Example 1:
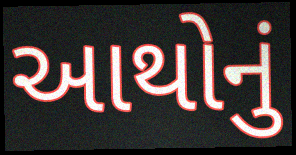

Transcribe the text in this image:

આથોનું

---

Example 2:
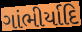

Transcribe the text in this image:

ગાંભીર્યાદિ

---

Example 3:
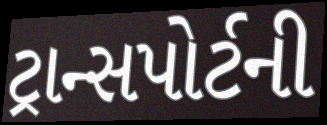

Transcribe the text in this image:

ટ્રાન્સપોર્ટની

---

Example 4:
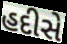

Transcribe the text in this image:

હદીસે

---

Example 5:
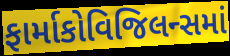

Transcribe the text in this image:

ફાર્માકોવિજિલન્સમાં